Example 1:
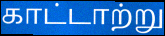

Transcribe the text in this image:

காட்டாற்று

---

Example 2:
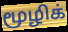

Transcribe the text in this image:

மூழிக்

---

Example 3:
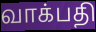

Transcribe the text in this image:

வாக்பதி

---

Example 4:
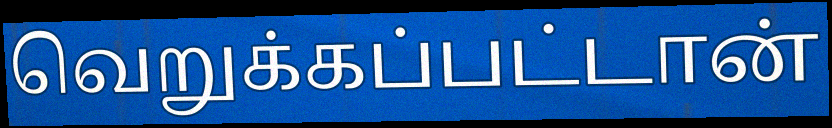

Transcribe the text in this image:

வெறுக்கப்பட்டான்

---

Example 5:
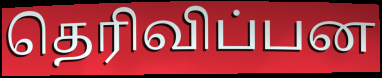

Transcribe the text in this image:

தெரிவிப்பன